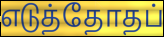
எடுத்தோதப்